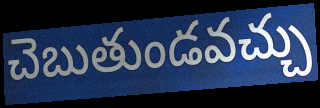
చెబుతుండవచ్చు